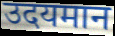
उदयमान